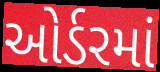
ઓર્ડરમાં